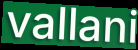
vallani